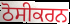
ਠੋਸੀਕਰਨ